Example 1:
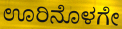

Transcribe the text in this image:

ಊರಿನೊಳಗೇ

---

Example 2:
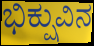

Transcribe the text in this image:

ಭಿಕ್ಷುವಿನ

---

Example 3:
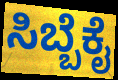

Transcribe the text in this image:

ಸಿಬ್ಬೆಕೈ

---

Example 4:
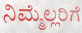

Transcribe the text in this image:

ನಿಮ್ಮೆಲ್ಲರಿಗೆ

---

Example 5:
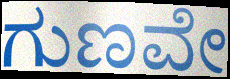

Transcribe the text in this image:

ಗುಣವೇ